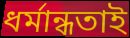
ধর্মান্ধতাই